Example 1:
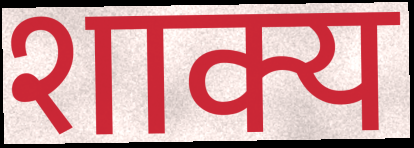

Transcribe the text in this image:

शाक्य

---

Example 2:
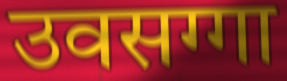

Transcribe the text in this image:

उवसग्गा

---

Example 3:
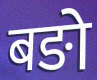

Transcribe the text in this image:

बङो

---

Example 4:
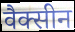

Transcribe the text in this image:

वैक्सीन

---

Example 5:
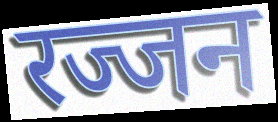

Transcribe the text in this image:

रज्जन